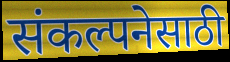
संकल्पनेसाठी